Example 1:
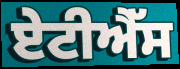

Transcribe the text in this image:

ਏਟੀਐੱਸ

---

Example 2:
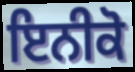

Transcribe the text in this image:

ਇਨੀਕੋ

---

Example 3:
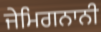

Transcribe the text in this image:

ਜੇਮਿਗਨਾਨੀ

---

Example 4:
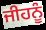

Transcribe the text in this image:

ਜੀਹਨੂੰ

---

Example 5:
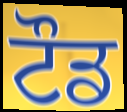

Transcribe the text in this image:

ਟੌਡ